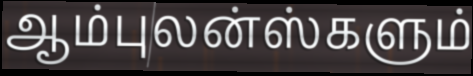
ஆம்புலன்ஸ்களும்